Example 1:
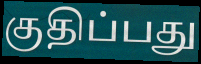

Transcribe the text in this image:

குதிப்பது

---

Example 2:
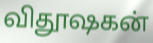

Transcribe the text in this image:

விதூஷகன்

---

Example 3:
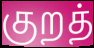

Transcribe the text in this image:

குறத்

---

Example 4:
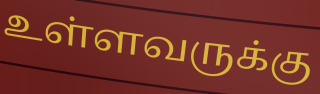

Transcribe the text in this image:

உள்ளவருக்கு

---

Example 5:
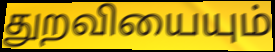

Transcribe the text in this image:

துறவியையும்